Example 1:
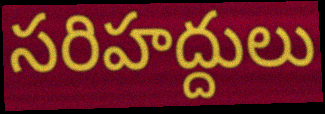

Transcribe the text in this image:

సరిహద్దులు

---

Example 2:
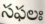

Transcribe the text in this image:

సఫలః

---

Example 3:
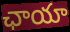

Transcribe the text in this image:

ఛాయా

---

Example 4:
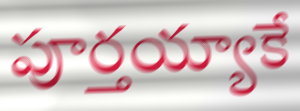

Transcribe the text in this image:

పూర్తయ్యాకే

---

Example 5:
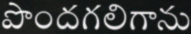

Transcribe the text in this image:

పొందగలిగాను